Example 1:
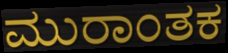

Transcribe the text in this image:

ಮುರಾಂತಕ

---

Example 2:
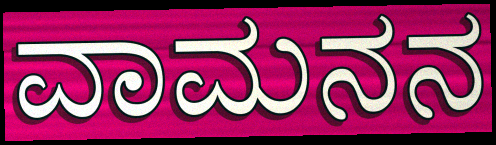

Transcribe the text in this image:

ವಾಮನನ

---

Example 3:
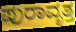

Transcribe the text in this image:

ಪುರಾವೃತ್ತ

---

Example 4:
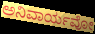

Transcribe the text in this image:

ಅನಿವಾರ್ಯವೋ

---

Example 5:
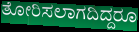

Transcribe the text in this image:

ತೋರಿಸಲಾಗದಿದ್ದರೂ